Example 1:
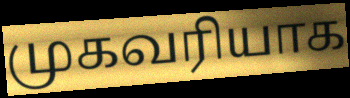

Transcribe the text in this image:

முகவரியாக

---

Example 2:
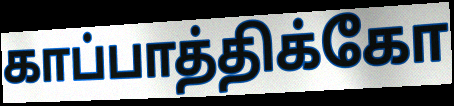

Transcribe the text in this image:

காப்பாத்திக்கோ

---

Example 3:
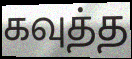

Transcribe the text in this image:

கவுத்த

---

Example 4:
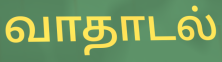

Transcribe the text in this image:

வாதாடல்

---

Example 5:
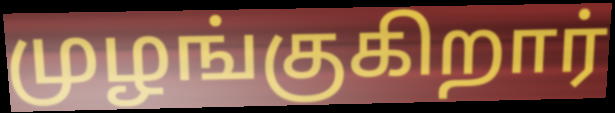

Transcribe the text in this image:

முழங்குகிறார்